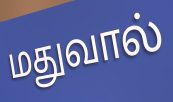
மதுவால்